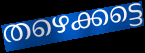
തഴെക്കട്ടെ